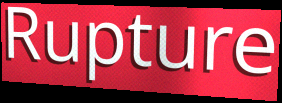
Rupture